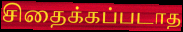
சிதைக்கப்படாத